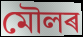
মৌলৰ